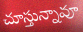
చూస్తున్నావూ